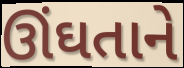
ઊંઘતાને